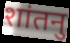
शांतनु